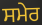
ਸਮੇਰ